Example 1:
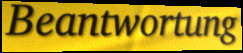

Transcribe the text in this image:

Beantwortung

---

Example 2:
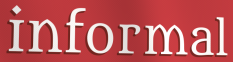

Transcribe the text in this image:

informal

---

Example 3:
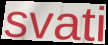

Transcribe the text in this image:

svati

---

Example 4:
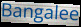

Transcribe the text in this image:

Bangalee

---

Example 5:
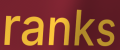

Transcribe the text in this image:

ranks